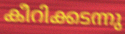
കീറിക്കടന്നു